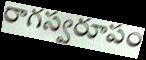
రాగస్వరూపం